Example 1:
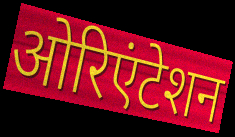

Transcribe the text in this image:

ओरिएंटेशन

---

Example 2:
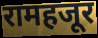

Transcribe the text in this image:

रामहजूर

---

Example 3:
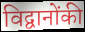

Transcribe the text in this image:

विद्वानोंकी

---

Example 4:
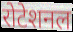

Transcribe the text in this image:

रोटेशनल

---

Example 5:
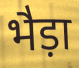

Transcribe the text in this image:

भैड़ा